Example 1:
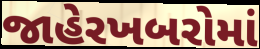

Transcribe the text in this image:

જાહેરખબરોમાં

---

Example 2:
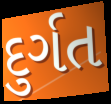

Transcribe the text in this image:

દુર્ગત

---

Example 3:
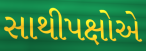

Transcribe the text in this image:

સાથીપક્ષોએ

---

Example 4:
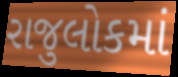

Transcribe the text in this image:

રાજુલોકમાં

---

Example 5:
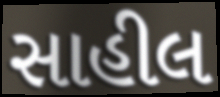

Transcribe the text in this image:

સાહીલ